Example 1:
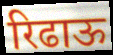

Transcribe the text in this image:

रिढाऊ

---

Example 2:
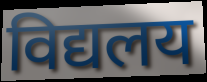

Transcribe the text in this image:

विद्यलय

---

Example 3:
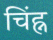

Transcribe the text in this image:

चिंह्न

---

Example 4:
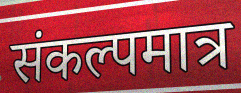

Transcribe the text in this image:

संकल्पमात्र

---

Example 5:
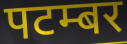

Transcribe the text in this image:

पटम्बर